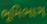
ભૂમિભાગ